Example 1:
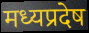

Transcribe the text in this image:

मध्यप्रदेष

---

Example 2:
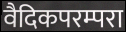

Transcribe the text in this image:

वैदिकपरम्परा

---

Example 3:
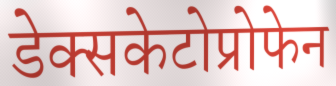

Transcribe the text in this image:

डेक्सकेटोप्रोफेन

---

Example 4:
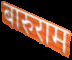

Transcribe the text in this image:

बारुराम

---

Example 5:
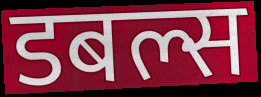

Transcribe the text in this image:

डबल्स